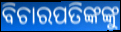
ବିଚାରପତିଙ୍କଙ୍କୁ